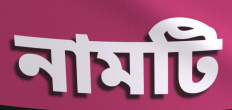
নামটি